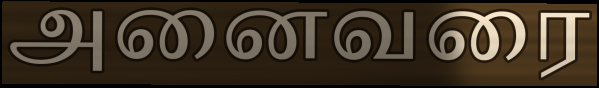
அனைவரை